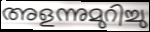
അളന്നുമുറിച്ചു